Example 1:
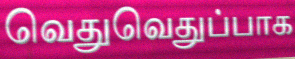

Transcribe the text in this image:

வெதுவெதுப்பாக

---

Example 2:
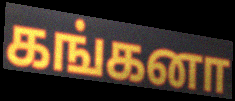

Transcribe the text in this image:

கங்கனா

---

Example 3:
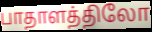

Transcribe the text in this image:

பாதாளத்திலோ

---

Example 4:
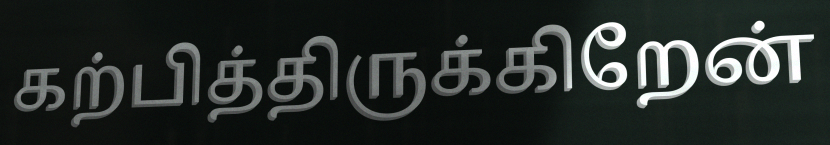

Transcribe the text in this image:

கற்பித்திருக்கிறேன்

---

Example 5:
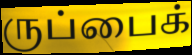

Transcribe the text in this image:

ருப்பைக்